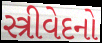
સ્ત્રીવેદનો